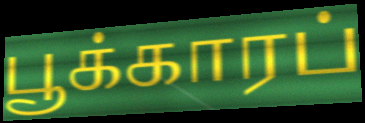
பூக்காரப்